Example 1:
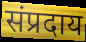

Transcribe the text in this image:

संप्रदाय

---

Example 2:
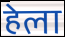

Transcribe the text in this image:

हेला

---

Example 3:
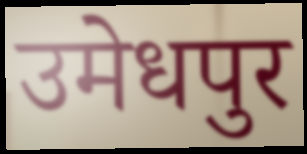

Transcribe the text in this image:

उमेधपुर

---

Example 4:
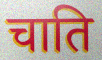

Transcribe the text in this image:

चाति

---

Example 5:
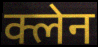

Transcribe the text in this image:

क्लेन